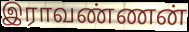
இராவண்ணன்